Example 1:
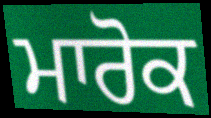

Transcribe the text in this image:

ਮਾਰੋਕ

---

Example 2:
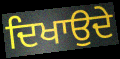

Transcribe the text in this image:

ਦਿਖਾਉਦੇ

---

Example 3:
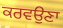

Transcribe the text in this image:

ਕਰਵਉਣਾ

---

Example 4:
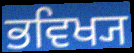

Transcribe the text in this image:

ਭਵਿਖ੍ਯ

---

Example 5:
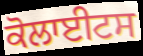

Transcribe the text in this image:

ਕੋਲਾਈਟਸ